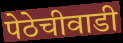
पेठेचीवाडी